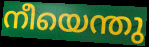
നീയെന്തു